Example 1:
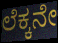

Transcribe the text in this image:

ಲೆಕ್ಕನೇ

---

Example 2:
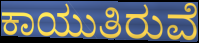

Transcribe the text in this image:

ಕಾಯುತಿರುವೆ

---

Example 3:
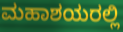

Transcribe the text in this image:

ಮಹಾಶಯರಲ್ಲಿ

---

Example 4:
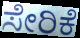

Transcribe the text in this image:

ಸೇರಿಕೆ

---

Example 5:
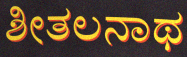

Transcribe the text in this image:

ಶೀತಲನಾಥ